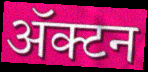
ॲक्टन